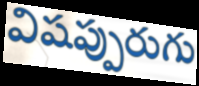
విషప్పురుగు